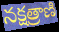
నక్షత్రాణి